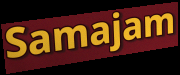
Samajam